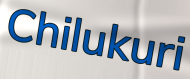
Chilukuri